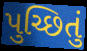
પુચ્છિતું